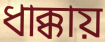
ধাক্কায়